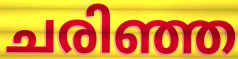
ചരിഞ്ഞ